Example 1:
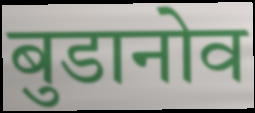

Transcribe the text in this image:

बुडानोव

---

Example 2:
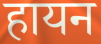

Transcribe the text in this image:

हायन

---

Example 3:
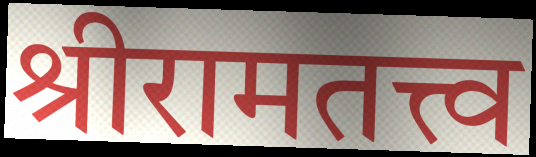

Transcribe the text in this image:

श्रीरामतत्त्व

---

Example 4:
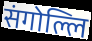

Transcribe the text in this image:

संगोल्लि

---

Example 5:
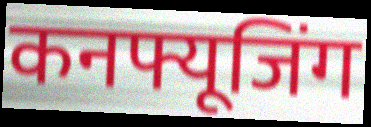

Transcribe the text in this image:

कनफ्यूजिंग